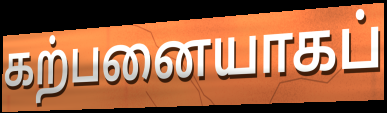
கற்பனையாகப்